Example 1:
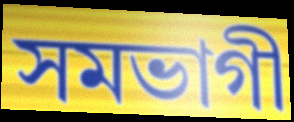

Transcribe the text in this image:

সমভাগী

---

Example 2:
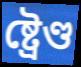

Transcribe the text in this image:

ষ্ট্ৰেণ্ড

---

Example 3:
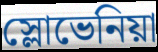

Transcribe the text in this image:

স্লোভেনিয়া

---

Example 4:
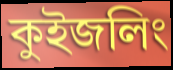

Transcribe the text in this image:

কুইজলিং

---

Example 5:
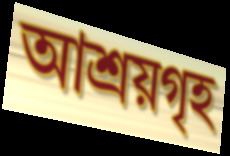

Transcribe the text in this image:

আশ্ৰয়গৃহ